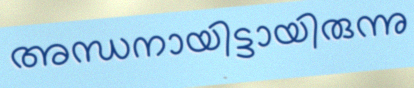
അന്ധനായിട്ടായിരുന്നു